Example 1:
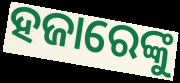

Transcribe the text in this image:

ହଜାରେଙ୍କୁ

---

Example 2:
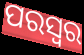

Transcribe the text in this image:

ପରସ୍ୱର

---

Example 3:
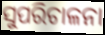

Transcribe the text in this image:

ସୁପରିଚାଳନା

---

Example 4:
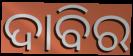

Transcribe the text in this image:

ଦାବିର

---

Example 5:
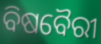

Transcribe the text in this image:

ବିଷବୈରୀ